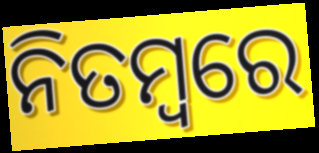
ନିତମ୍ୱରେ